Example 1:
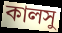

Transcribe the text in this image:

কালসু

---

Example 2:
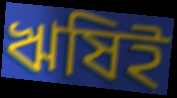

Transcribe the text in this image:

ঋষিই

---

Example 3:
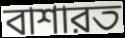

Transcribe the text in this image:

বাশারত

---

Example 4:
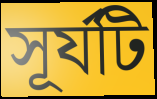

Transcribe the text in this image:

সূর্যটি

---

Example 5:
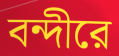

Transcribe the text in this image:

বন্দীরে